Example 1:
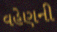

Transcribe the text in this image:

વહેણની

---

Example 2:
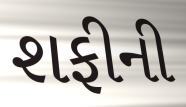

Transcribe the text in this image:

શફીની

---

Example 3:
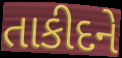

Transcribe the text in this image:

તાકીદને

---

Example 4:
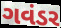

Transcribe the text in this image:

ગવંડર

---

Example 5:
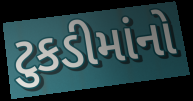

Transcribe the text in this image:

ટુકડીમાંનો